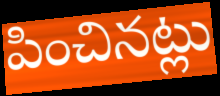
పించినట్లు